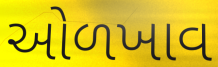
ઓળખાવ